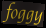
foggy